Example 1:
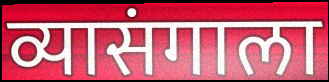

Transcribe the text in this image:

व्यासंगाला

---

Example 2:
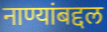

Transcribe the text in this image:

नाण्यांबद्दल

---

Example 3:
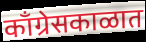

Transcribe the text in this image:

काँग्रेसकाळात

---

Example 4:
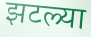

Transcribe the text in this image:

झटल्या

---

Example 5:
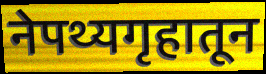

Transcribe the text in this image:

नेपथ्यगृहातून